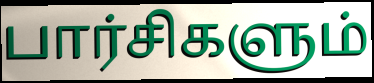
பார்சிகளும்